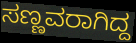
ಸಣ್ಣವರಾಗಿದ್ದ